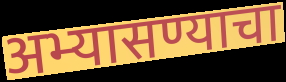
अभ्यासण्याचा